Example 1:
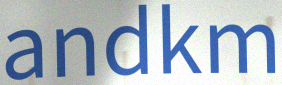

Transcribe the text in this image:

andkm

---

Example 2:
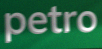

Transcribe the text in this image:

petro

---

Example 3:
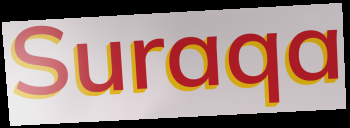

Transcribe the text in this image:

Suraqa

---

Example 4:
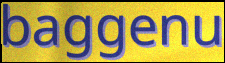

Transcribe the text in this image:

baggenu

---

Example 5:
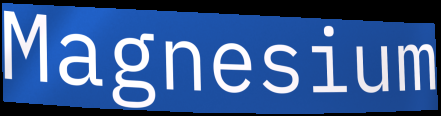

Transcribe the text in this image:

Magnesium